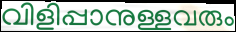
വിളിപ്പാനുള്ളവരും